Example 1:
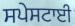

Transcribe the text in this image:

ਸਪੇਸਟਾਈ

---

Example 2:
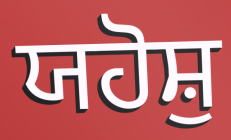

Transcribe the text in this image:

ਯਹੋਸ਼ੁ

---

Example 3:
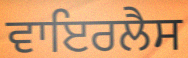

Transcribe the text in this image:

ਵਾਇਰਲੈਸ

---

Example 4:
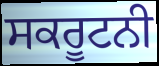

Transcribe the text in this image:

ਸਕਰੂਟਨੀ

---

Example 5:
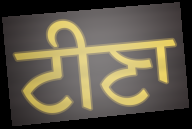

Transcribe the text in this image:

ਟੀਣਾ